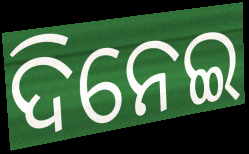
ଦିନେଇ